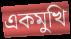
একমুখি